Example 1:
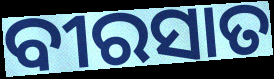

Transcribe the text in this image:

ବୀରସାତ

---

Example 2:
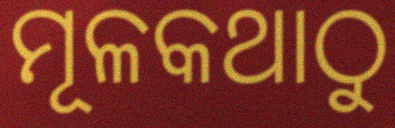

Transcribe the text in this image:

ମୂଳକଥାଠୁ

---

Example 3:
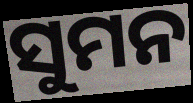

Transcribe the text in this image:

ସୁମନ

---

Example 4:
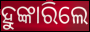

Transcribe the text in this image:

ହୁଙ୍କାରିଲେ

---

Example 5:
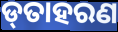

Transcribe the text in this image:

ଡ୍‌ତାହରଣ